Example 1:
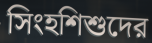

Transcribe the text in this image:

সিংহশিশুদের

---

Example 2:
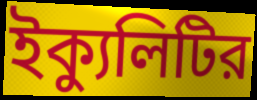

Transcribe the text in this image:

ইক্যুলিটির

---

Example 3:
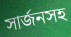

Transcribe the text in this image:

সার্জনসহ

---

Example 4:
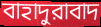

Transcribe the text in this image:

বাহাদুরাবাদ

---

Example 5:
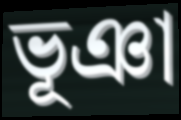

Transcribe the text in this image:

ভূঞা